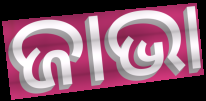
ଜାଭା